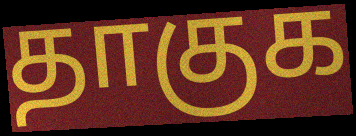
தாகுக